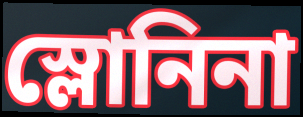
স্লোনিনা